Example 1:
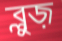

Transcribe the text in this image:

ব্লুজ়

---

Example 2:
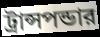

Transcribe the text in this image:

ট্রান্সপন্ডার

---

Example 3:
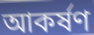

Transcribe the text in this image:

আকর্ষণ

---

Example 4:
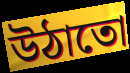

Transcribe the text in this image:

উঠাতো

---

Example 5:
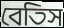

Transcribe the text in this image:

বেতিস